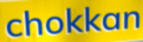
chokkan